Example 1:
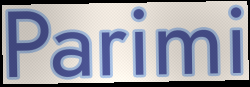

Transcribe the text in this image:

Parimi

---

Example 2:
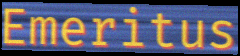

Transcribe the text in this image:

Emeritus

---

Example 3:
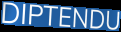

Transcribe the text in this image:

DIPTENDU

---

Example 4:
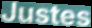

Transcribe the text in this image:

Justes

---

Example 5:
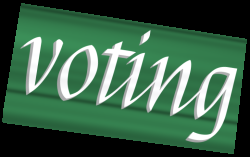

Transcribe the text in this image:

voting